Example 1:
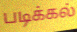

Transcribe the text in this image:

படிக்கல்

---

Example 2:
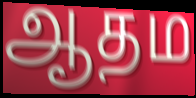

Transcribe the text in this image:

ஆதம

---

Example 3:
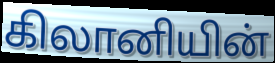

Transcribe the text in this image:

கிலானியின்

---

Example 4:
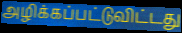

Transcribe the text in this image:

அழிக்கப்பட்டுவிட்டது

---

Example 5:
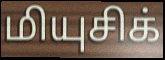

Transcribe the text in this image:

மியுசிக்